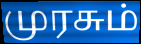
முரசும்